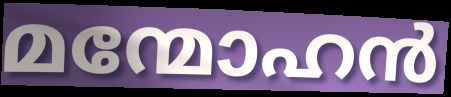
മന്മോഹൻ